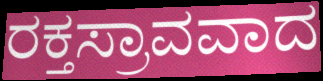
ರಕ್ತಸ್ರಾವವಾದ